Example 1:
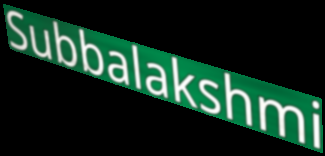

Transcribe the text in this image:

Subbalakshmi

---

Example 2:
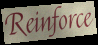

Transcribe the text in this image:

Reinforce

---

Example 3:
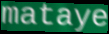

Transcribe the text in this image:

mataye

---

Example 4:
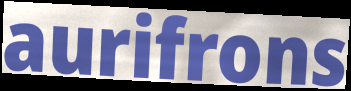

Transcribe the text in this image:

aurifrons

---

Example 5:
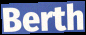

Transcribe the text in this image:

Berth